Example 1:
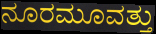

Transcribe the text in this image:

ನೂರಮೂವತ್ತು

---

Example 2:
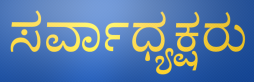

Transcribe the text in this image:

ಸರ್ವಾಧ್ಯಕ್ಷರು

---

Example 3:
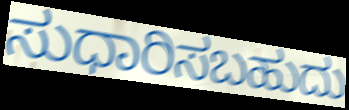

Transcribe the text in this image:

ಸುಧಾರಿಸಬಹುದು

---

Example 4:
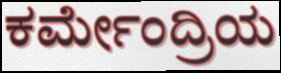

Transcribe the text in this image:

ಕರ್ಮೇಂದ್ರಿಯ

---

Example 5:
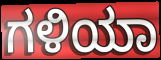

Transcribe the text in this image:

ಗಳಿಯಾ